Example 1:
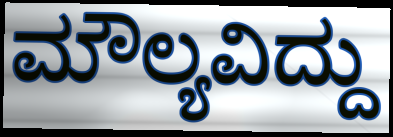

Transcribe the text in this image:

ಮೌಲ್ಯವಿದ್ದು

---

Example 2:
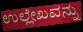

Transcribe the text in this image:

ಉಲ್ಲೇಖವನ್ನು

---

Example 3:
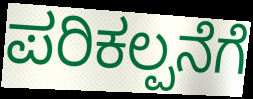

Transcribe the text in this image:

ಪರಿಕಲ್ಪನೆಗೆ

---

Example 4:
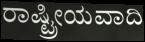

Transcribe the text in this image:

ರಾಷ್ಟ್ರೀಯವಾದಿ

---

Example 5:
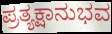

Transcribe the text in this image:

ಪ್ರತ್ಯಕ್ಷಾನುಭವ